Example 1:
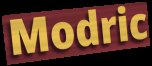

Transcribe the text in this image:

Modric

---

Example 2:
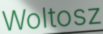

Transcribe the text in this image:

Woltosz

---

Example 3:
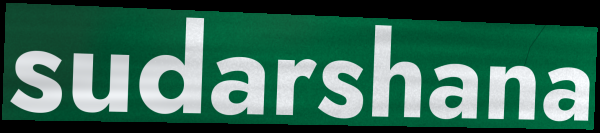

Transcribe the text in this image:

sudarshana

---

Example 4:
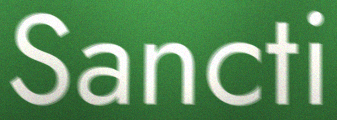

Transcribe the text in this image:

Sancti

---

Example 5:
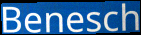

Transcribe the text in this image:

Benesch